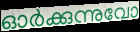
ഓർക്കുന്നുവോ